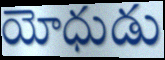
యోధుడు